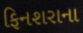
ફિનશરાના